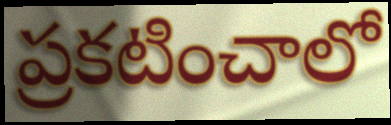
ప్రకటించాలో